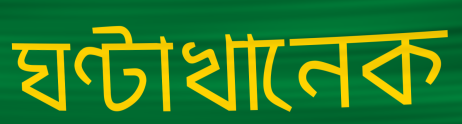
ঘণ্টাখানেক